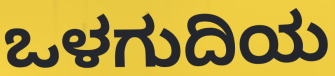
ಒಳಗುದಿಯ